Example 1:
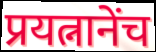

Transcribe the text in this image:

प्रयत्नानेंच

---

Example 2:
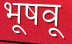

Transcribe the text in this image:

भूषवू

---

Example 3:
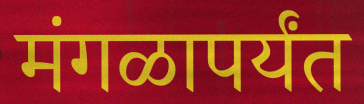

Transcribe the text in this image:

मंगळापर्यंत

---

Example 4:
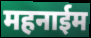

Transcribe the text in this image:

महनाईम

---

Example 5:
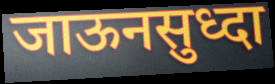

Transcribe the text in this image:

जाऊनसुध्दा